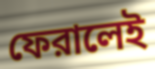
ফেরালেই